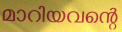
മാറിയവന്റെ